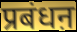
प्रबंधऩ